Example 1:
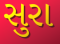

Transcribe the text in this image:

સુરા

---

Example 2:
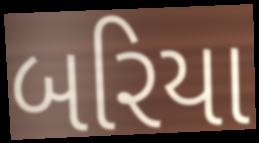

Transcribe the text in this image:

બરિયા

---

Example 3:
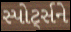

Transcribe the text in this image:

સ્પોર્ટ્સને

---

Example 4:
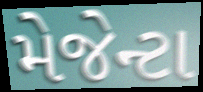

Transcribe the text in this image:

મેજેન્ટા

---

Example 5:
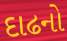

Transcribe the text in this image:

દાઢનો